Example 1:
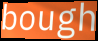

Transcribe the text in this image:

bough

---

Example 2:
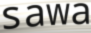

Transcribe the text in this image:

sawa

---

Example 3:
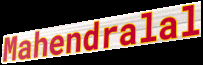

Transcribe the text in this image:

Mahendralal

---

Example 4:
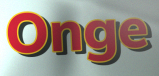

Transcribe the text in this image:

Onge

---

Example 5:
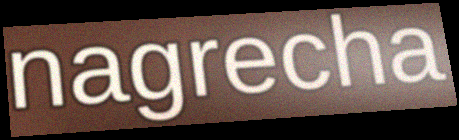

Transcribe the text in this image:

nagrecha